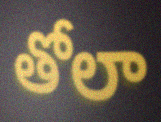
తోలా